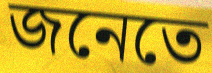
জনেতে